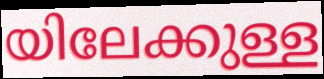
യിലേക്കുള്ള